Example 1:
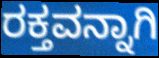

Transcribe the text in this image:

ರಕ್ತವನ್ನಾಗಿ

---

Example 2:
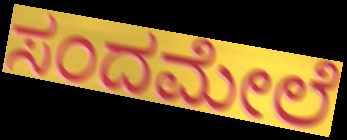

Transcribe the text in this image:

ಸಂದಮೇಲೆ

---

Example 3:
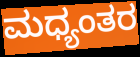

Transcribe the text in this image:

ಮಧ್ಯಂತರ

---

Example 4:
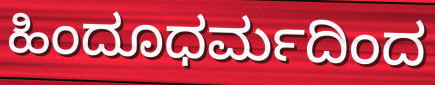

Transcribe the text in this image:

ಹಿಂದೂಧರ್ಮದಿಂದ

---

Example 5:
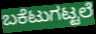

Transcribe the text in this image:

ಬಕೆಟುಗಟ್ಟಲೆ